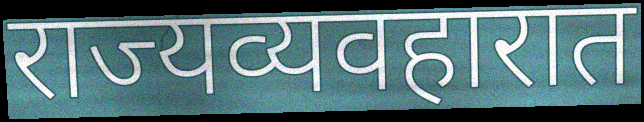
राज्यव्यवहारात